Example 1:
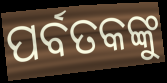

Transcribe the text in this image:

ପର୍ବତକଙ୍କୁ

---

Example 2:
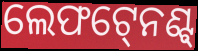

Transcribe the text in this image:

ଲେଫଟ୍‍ନେଣ୍ଟ୍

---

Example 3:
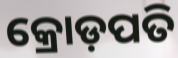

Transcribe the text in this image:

କ୍ରୋଡ଼ପତି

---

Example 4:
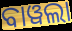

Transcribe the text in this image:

ବାୱଲା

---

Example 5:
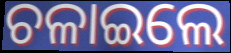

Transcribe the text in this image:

ଚଳାଇଲେ